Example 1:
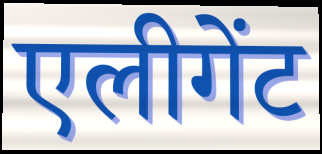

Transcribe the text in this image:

एलीगेंट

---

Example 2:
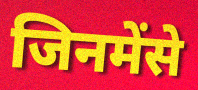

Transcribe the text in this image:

जिनमेंसे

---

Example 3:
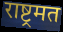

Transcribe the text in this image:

राष्ट्रमत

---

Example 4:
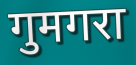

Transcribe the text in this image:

गुमगरा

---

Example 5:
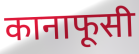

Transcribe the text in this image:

कानाफूसी